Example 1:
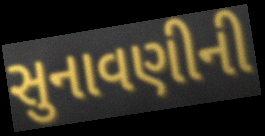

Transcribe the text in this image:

સુનાવણીની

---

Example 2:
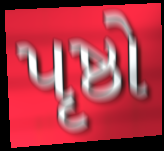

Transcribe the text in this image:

પૃષ્ઠો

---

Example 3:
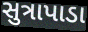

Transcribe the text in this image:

સુત્રાપાડા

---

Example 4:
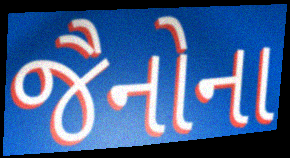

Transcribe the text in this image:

જૈનોના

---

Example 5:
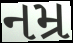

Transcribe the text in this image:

નમ્ર